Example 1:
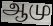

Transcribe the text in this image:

ஆமு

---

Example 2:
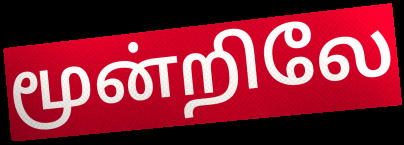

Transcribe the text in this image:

மூன்றிலே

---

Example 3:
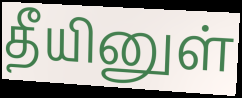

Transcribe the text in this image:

தீயினுள்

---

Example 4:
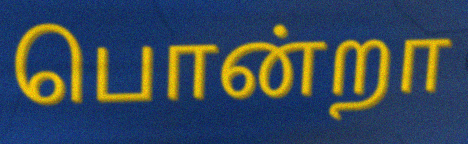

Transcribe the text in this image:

பொன்றா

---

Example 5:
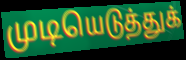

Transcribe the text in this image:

முடியெடுத்துக்